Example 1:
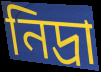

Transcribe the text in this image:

নিদ্রা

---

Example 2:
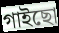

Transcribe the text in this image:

গাইছো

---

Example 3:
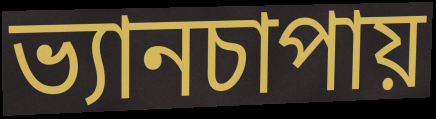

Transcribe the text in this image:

ভ্যানচাপায়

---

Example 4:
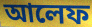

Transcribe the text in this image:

আলেফ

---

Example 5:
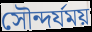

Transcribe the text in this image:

সৌন্দর্যময়